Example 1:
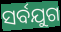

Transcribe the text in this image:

ସର୍ବଯୁଗ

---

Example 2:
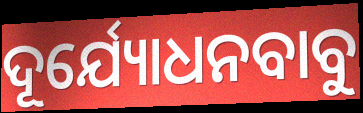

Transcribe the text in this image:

ଦୂର୍ଯ୍ୟୋଧନବାବୁ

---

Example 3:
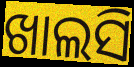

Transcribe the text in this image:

ଖାଲସି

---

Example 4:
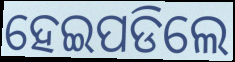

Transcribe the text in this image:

ହେଇପଡିଲେ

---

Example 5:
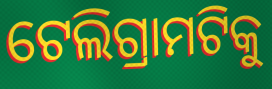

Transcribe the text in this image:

ଟେଲିଗ୍ରାମଟିକୁ